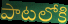
పాటలోకి